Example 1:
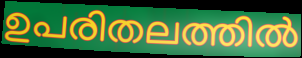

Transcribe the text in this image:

ഉപരിതലത്തിൽ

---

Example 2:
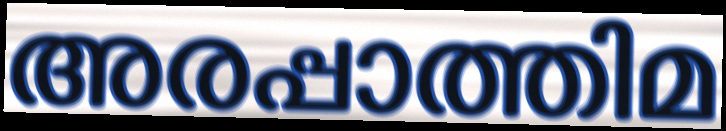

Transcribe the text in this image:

അരപ്പാത്തിമ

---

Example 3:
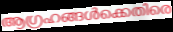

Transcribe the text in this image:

ആഗ്രഹങ്ങൾക്കെതിരെ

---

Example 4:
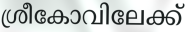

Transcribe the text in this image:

ശ്രീകോവിലേക്ക്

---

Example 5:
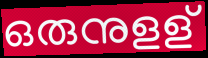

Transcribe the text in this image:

ഒരുനുളള്